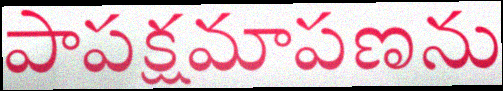
పాపక్షమాపణను